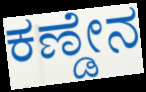
ಕಣ್ಡೇನ